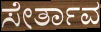
ಸೇರ್ತಾವ